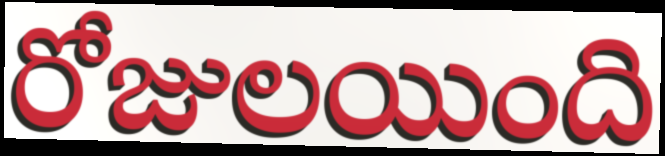
రోజులయింది